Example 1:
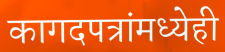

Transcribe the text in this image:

कागदपत्रांमध्येही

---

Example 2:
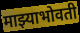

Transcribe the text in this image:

माझ्याभोवती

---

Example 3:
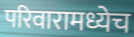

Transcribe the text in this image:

परिवारामध्येच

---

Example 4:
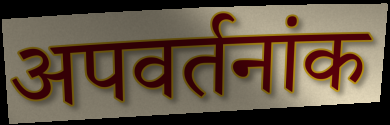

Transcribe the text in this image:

अपवर्तनांक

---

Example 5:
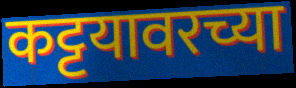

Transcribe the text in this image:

कट्टयावरच्या